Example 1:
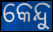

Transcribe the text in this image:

କେନ୍ଦୁ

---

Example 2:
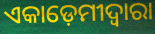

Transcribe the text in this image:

ଏକାଡ଼େମୀଦ୍ଵାରା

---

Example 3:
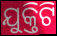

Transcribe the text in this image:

ଯୁକ୍ତିଟି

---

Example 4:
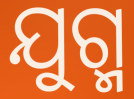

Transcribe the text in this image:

ଯୁଗ୍ମ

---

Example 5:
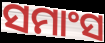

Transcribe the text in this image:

ସମାଂସ